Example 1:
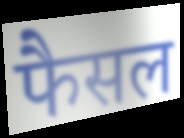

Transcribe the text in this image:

फैसल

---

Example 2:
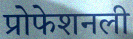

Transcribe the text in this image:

प्रोफेशनली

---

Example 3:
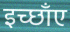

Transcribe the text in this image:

इच्छाँए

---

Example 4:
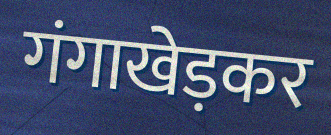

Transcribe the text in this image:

गंगाखेड़कर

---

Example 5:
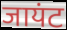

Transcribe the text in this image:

जायंट